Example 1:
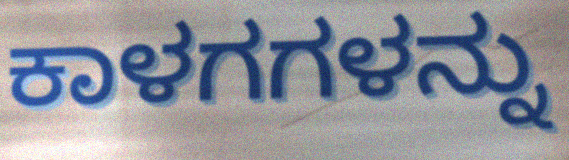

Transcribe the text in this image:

ಕಾಳಗಗಳನ್ನು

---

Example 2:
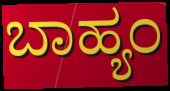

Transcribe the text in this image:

ಬಾಹ್ಯಂ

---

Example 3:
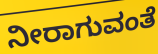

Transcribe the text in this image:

ನೀರಾಗುವಂತೆ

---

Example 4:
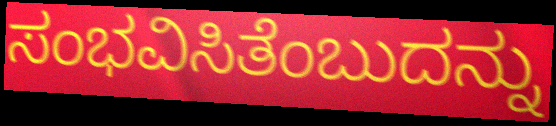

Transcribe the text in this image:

ಸಂಭವಿಸಿತೆಂಬುದನ್ನು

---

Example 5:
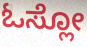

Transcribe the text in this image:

ಓಸ್ಲೋ